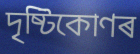
দৃষ্টিকোণৰ